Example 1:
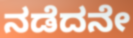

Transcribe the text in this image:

ನಡೆದನೇ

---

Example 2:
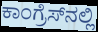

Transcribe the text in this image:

ಕಾಂಗ್ರೆಸ್‌ನಲ್ಲಿ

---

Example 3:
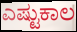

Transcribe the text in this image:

ಎಷ್ಟುಕಾಲ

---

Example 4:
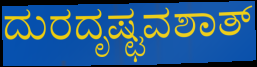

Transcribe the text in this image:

ದುರದೃಷ್ಟವಶಾತ್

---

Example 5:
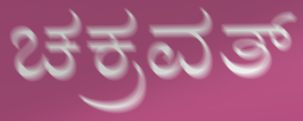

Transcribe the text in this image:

ಚಕ್ರವತ್